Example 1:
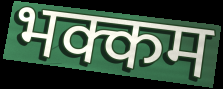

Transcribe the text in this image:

भक्कम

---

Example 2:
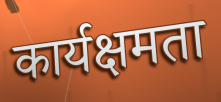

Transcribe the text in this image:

कार्यक्षमता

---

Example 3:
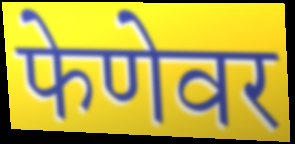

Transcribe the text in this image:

फेणेवर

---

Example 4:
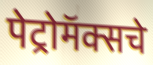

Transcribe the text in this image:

पेट्रोमॅक्सचे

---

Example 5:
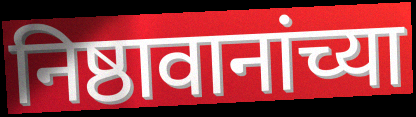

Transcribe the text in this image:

निष्ठावानांच्या